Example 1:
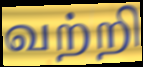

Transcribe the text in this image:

வற்றி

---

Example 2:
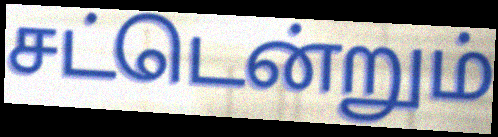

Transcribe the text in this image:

சட்டென்றும்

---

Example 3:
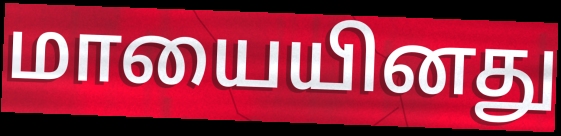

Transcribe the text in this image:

மாயையினது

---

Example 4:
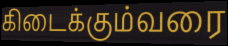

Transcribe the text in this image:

கிடைக்கும்வரை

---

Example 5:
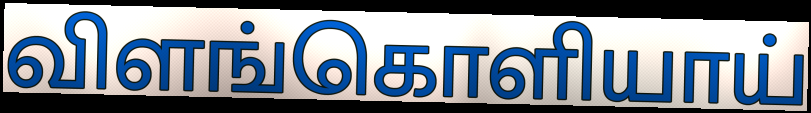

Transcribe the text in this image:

விளங்கொளியாய்